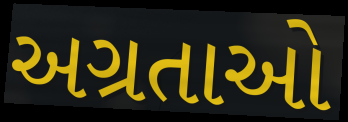
અગ્રતાઓ